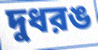
দুধরঙ